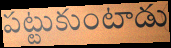
పట్టుకుంటాడు